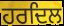
ਹਰਦਿਲ